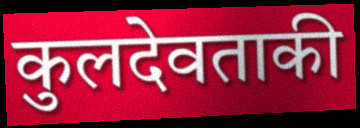
कुलदेवताकी